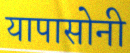
यापासोनी